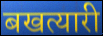
बखत्यारी